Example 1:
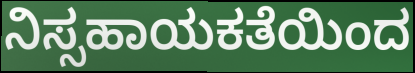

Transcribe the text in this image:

ನಿಸ್ಸಹಾಯಕತೆಯಿಂದ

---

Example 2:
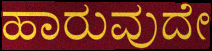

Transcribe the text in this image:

ಹಾರುವುದೇ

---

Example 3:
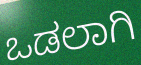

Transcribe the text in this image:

ಒಡಲಾಗಿ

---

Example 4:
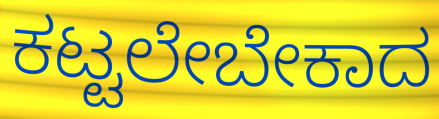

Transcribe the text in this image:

ಕಟ್ಟಲೇಬೇಕಾದ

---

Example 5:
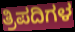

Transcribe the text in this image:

ತ್ರಿಪದಿಗಳ